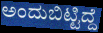
ಅಂದುಬಿಟ್ಟಿದ್ದೆ